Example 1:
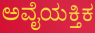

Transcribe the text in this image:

ಅವೈಯಕ್ತಿಕ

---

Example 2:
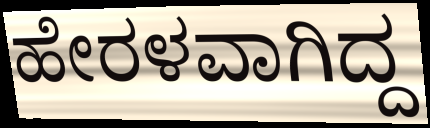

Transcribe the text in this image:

ಹೇರಳವಾಗಿದ್ದ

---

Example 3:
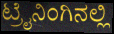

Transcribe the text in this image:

ಟ್ರೈನಿಂಗಿನಲ್ಲಿ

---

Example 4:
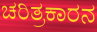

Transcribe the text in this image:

ಚರಿತ್ರಕಾರನ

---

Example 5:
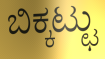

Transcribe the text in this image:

ಬಿಕ್ಕಟ್ಟು